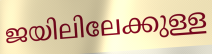
ജയിലിലേക്കുള്ള